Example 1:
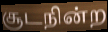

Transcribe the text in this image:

சூடநின்ற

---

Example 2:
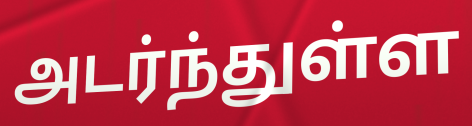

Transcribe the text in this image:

அடர்ந்துள்ள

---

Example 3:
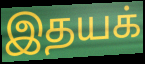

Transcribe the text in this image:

இதயக்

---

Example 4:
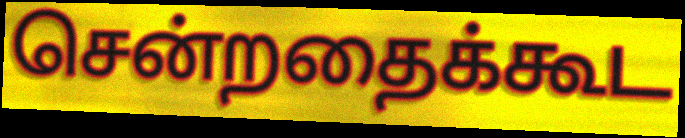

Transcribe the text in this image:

சென்றதைக்கூட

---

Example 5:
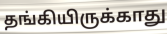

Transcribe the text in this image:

தங்கியிருக்காது